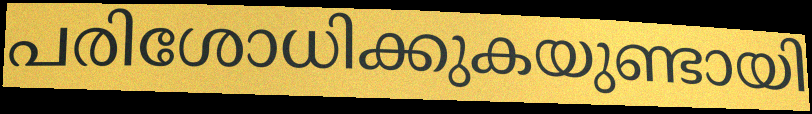
പരിശോധിക്കുകയുണ്ടായി